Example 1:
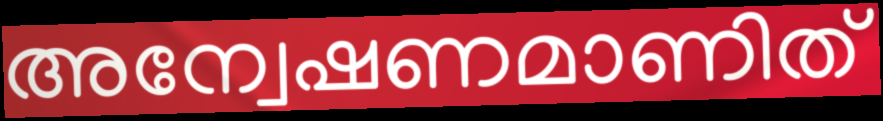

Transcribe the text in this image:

അന്വേഷണമാണിത്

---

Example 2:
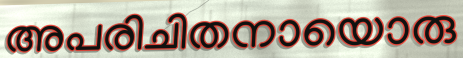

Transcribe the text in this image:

അപരിചിതനായൊരു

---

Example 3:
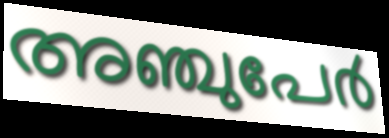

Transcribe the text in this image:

അഞ്ചുപേർ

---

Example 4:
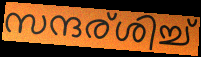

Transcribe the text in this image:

സന്ദര്ശിച്ച്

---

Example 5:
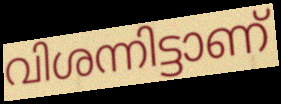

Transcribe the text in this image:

വിശന്നിട്ടാണ്